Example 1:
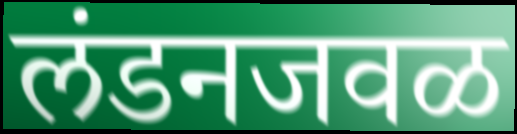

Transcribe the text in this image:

लंडनजवळ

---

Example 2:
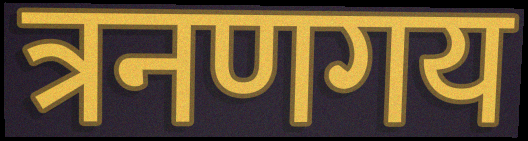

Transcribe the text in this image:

त्रनणगय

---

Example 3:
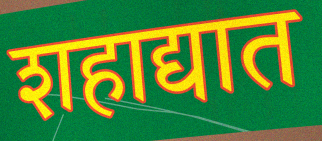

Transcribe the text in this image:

शहाद्यात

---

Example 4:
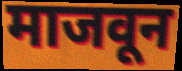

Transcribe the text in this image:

माजवून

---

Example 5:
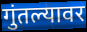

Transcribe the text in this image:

गुंतल्यावर